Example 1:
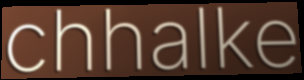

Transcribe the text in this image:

chhalke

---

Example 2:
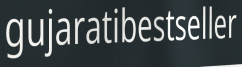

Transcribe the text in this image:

gujaratibestseller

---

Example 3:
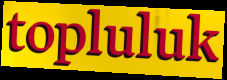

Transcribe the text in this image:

topluluk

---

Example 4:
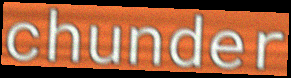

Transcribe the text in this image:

chunder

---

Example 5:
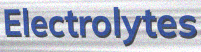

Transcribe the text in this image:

Electrolytes